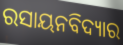
ରସାୟନବିଦ୍ୟାର